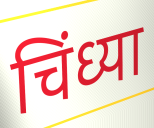
चिंध्या